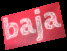
baja